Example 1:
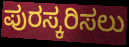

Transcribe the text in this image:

ಪುರಸ್ಕರಿಸಲು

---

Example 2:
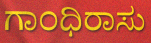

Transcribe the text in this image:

ಗಾಂಧಿರಾಸು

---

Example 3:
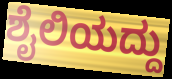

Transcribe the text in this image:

ಶೈಲಿಯದ್ದು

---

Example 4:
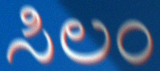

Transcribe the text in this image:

ಸಿಲಂ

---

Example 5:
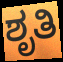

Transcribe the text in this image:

ಶೃತಿ